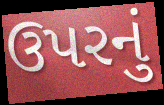
ઉપરનું